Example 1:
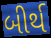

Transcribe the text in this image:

બીર્થ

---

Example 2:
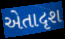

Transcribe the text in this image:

એતાદૃશ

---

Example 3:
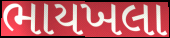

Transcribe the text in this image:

ભાયખલા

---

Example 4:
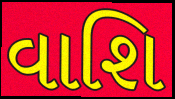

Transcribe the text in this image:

વાશિ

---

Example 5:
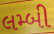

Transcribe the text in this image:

લમ્બી